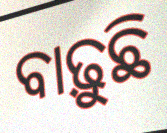
ବାଢ଼ୁଛି